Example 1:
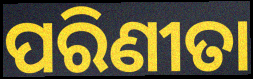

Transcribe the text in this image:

ପରିଣୀତା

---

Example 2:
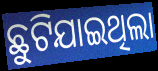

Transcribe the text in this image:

ଛୁଟିଯାଇଥିଲା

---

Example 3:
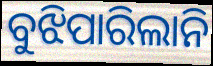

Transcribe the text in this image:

ବୁଝିପାରିଲାନି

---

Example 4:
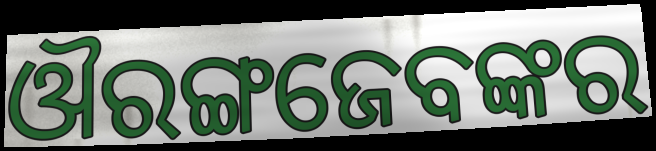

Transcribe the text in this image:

ଔରଙ୍ଗଜେବଙ୍କର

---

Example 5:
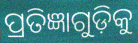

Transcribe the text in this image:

ପ୍ରତିଜ୍ଞାଗୁଡ଼ିକୁ